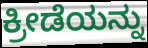
ಕ್ರೀಡೆಯನ್ನು